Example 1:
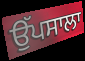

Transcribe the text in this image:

ਉੱਪਸਾਲਾ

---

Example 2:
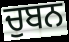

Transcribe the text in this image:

ਚੁਬਨ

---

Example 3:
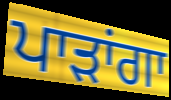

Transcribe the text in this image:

ਪਾੜਾਂਗਾ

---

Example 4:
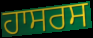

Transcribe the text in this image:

ਹਾਸਰਸ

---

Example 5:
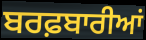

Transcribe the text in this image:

ਬਰਫ਼ਬਾਰੀਆਂ